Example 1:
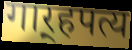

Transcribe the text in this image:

गार्हपत्य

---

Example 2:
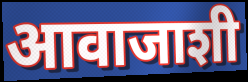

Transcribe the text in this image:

आवाजाशी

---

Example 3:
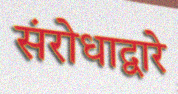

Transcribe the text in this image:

संरोधाद्वारे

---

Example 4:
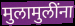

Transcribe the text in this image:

मुलामुलींना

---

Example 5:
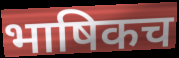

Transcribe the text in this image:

भाषिकच